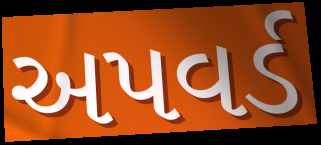
અપવર્ડ